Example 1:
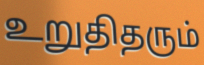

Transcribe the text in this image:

உறுதிதரும்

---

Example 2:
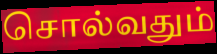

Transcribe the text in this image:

சொல்வதும்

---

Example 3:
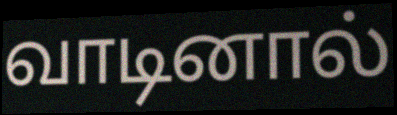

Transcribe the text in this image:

வாடினால்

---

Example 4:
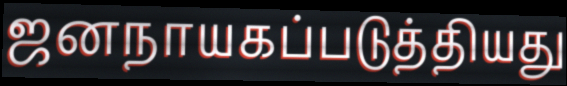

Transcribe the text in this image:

ஜனநாயகப்படுத்தியது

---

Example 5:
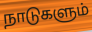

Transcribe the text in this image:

நாடுகளும்